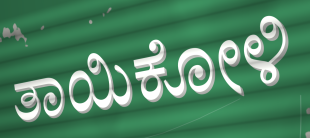
ತಾಯಿಕೋಳಿ